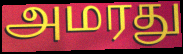
அமரது